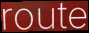
route